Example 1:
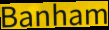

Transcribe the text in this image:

Banham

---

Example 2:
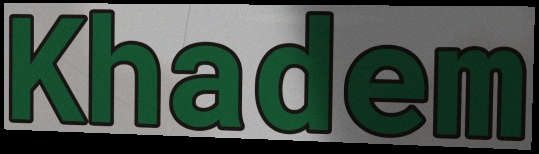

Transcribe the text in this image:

Khadem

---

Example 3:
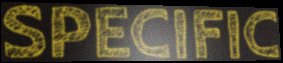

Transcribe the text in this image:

SPECIFIC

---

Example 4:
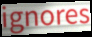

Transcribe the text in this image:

ignores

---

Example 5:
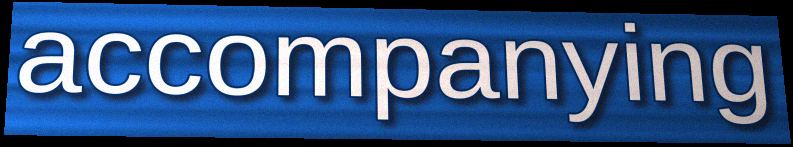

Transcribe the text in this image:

accompanying